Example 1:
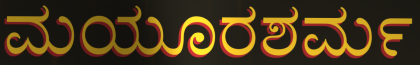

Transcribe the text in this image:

ಮಯೂರಶರ್ಮ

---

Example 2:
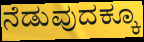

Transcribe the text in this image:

ನೆಡುವುದಕ್ಕೂ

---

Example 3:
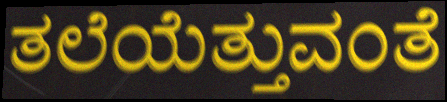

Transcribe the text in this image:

ತಲೆಯೆತ್ತುವಂತೆ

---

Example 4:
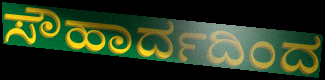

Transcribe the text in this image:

ಸೌಹಾರ್ದದಿಂದ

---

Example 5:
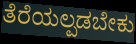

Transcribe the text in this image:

ತೆರೆಯಲ್ಪಡಬೇಕು